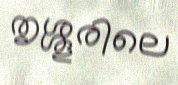
തൃശ്ശൂരിലെ